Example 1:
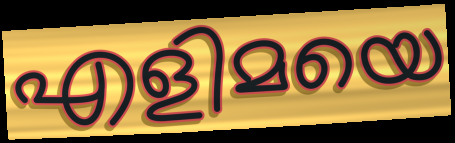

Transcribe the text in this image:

എളിമയെ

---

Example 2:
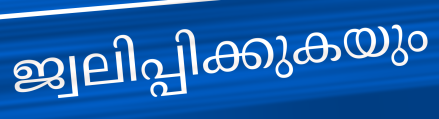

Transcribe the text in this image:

ജ്വലിപ്പിക്കുകയും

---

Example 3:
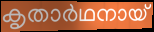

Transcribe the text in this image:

കൃതാർഥനായ്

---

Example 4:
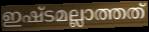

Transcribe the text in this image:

ഇഷ്ടമല്ലാത്തത്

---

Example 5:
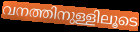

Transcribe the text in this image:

വനത്തിനുള്ളിലൂടെ